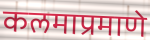
कलमाप्रमाणे